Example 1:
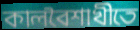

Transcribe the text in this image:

কালবৈশাখীতে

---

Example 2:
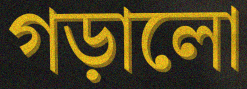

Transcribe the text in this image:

গড়ালো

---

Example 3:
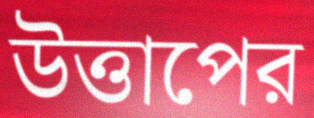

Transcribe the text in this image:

উত্তাপের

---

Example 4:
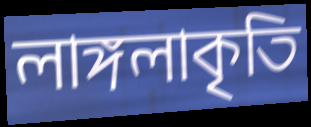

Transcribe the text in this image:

লাঙ্গলাকৃতি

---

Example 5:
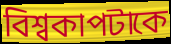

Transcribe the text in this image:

বিশ্বকাপটাকে